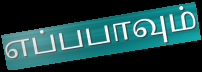
எப்பபாவும்